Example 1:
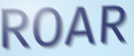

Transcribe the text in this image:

ROAR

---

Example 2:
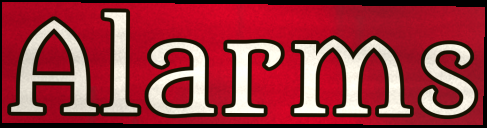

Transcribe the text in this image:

Alarms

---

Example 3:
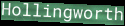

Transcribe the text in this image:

Hollingworth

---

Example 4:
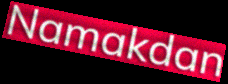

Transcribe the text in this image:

Namakdan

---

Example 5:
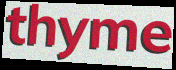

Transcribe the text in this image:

thyme